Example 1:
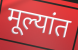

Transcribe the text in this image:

मूल्यांत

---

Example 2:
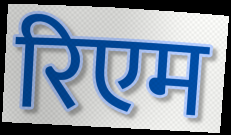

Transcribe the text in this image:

रिएम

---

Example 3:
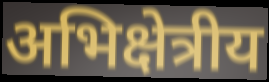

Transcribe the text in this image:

अभिक्षेत्रीय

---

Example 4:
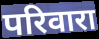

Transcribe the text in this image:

परिवारा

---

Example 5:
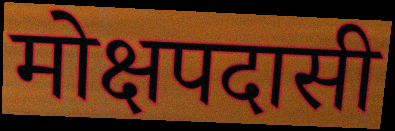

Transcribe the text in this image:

मोक्षपदासी